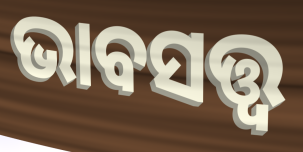
ଭାବସତ୍ତ୍ୱ